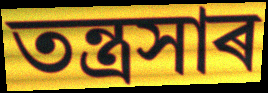
তন্ত্ৰসাৰ